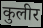
कुलीर